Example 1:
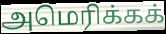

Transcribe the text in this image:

அமெரிக்கக்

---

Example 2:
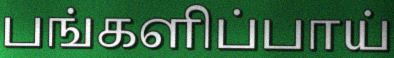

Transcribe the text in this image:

பங்களிப்பாய்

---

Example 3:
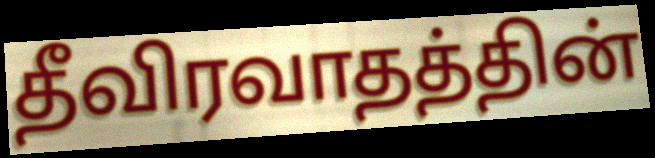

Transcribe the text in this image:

தீவிரவாதத்தின்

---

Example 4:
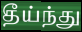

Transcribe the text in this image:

தீய்ந்து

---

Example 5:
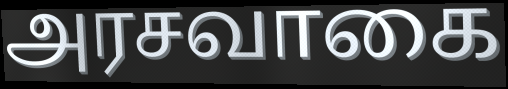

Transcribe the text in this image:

அரசவாகை